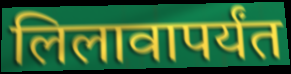
लिलावापर्यंत